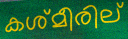
കശ്മീരില്